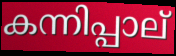
കന്നിപ്പാല്